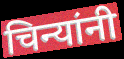
चिन्यांनी